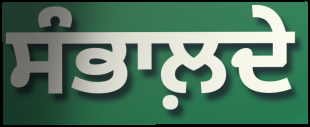
ਸੰਭਾਲ਼ਦੇ